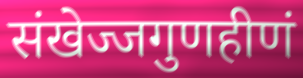
संखेज्जगुणहीणं